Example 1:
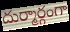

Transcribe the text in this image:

దుర్మార్గంగా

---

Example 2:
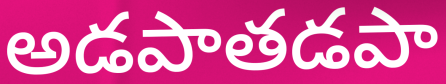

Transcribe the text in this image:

అడపాతడపా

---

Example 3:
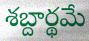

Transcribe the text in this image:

శబ్దార్థమే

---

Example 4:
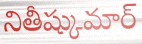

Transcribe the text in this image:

నితీష్కుమార్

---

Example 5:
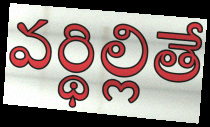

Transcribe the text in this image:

వర్థిల్లితే